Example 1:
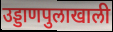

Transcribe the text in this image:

उड्डाणपुलाखाली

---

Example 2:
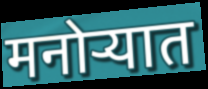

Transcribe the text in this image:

मनोऱ्यात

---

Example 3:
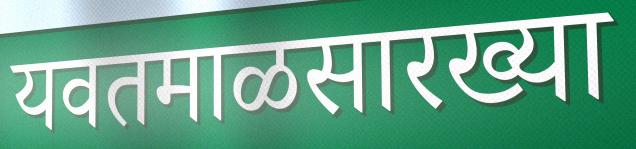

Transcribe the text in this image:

यवतमाळसारख्या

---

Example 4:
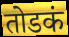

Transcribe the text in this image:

तोडकं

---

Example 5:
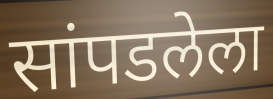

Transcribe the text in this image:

सांपडलेला